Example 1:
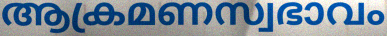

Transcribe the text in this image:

ആക്രമണസ്വഭാവം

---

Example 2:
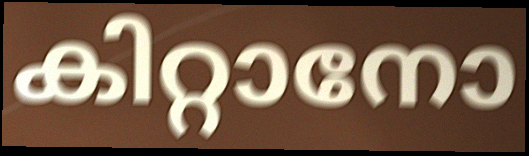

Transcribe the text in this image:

കിറ്റാനോ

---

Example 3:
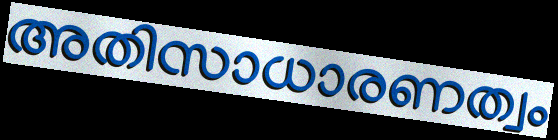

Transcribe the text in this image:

അതിസാധാരണത്വം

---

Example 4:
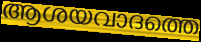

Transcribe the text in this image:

ആശയവാദത്തെ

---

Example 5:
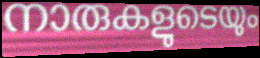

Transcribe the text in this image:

നാരുകളുടെയും